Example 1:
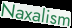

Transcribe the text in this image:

Naxalism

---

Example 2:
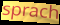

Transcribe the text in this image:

sprach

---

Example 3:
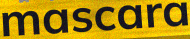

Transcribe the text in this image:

mascara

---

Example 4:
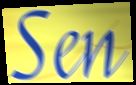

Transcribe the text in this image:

Sen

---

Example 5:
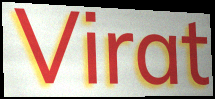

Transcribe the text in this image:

Virat